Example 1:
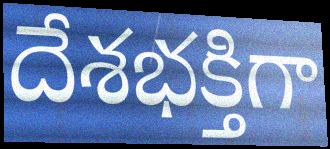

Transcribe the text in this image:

దేశభక్తిగా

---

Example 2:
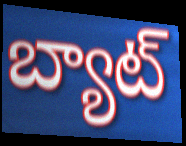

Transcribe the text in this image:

బ్యాట్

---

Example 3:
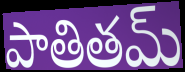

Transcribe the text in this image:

పాతితమ్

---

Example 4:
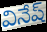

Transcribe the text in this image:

వినేష్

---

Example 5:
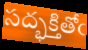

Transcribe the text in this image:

సద్భక్తితోఁ